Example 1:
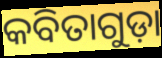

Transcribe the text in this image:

କବିତାଗୁଡ଼ା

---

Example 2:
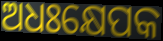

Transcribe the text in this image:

ଅଧଃକ୍ଷେପକ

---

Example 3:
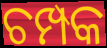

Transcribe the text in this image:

ଚମ୍ପକ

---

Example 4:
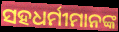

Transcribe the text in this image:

ସହଧର୍ମୀମାନଙ୍କ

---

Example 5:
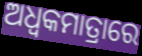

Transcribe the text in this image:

ଅଧ୍ଵକମାତ୍ରାରେ